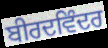
ਬੀਰਦਵਿੰਦਰ